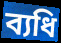
ব্যধি